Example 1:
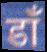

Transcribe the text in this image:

डॉं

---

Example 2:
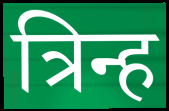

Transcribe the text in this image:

त्रिन्ह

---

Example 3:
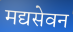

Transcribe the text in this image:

मद्यसेवन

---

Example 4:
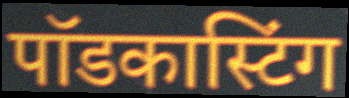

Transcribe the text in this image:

पॉडकास्टिंग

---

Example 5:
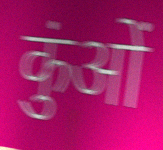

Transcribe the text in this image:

कुंओं